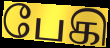
பேகி